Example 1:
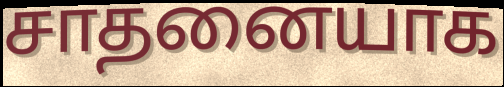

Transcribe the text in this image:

சாதனையாக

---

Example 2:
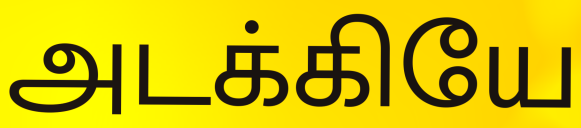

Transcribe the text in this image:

அடக்கியே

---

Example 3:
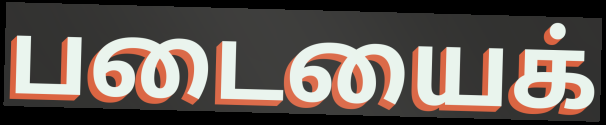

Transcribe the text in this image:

படையைக்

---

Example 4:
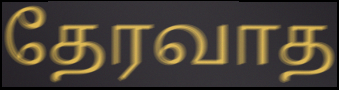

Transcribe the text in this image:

தேரவாத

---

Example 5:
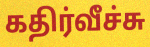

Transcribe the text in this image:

கதிர்வீச்சு